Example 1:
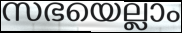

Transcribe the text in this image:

സഭയെല്ലാം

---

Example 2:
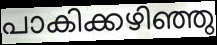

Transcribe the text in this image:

പാകിക്കഴിഞ്ഞു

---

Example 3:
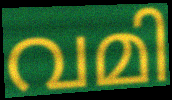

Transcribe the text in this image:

വമി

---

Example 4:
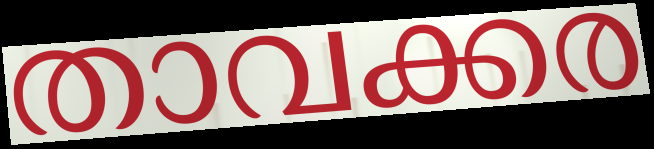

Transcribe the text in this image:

താവക്കര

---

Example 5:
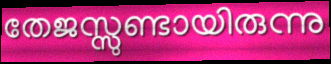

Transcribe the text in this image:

തേജസ്സുണ്ടായിരുന്നു